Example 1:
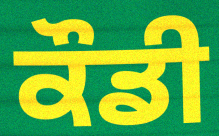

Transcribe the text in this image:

ਕੌਡੀ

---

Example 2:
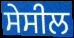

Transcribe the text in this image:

ਸੇਸੀਲ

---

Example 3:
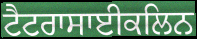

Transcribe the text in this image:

ਟੈਟਰਾਸਾਈਕਲਿਨ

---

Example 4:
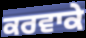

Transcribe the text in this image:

ਕਰਵਾਕੇ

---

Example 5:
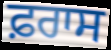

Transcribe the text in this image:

ਫ਼ਰਾਸ